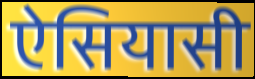
ऐसियासी